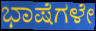
ಭಾಷೆಗಳೇ